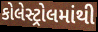
કોલેસ્ટ્રોલમાંથી